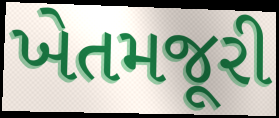
ખેતમજૂરી